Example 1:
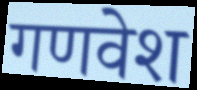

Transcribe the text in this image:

गणवेश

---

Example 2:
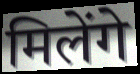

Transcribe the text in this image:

मिलेंगे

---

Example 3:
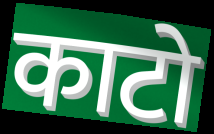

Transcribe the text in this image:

काटो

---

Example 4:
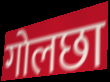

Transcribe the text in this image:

गोलछा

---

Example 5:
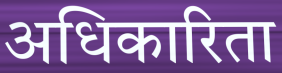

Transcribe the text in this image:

अधिकारिता